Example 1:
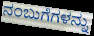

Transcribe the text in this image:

ನಂಬುಗೆಗಳನ್ನು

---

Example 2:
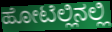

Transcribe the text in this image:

ಹೋಟೆಲ್ಲಿನಲ್ಲಿ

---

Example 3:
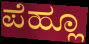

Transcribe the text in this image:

ಪೆಹ್ಲೂ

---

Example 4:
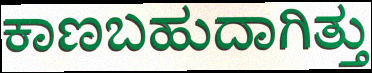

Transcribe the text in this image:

ಕಾಣಬಹುದಾಗಿತ್ತು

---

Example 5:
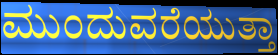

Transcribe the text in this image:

ಮುಂದುವರೆಯುತ್ತಾ